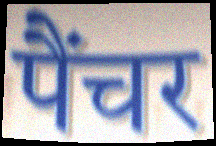
पैंचर